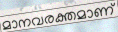
മാനവരക്തമാണ്